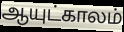
ஆயுட்காலம்